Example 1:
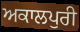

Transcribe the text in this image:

ਅਕਾਲਪੁਰੀ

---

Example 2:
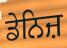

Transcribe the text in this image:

ਡੇਨਿਜ਼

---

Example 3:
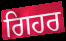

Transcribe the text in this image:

ਗਿਹਰ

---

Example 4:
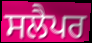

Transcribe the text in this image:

ਸਲੈਪਰ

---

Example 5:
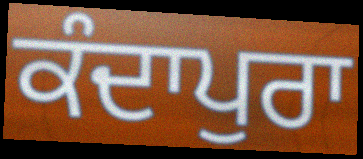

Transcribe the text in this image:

ਕੰਦਾਪੁਰਾ